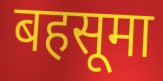
बहसूमा